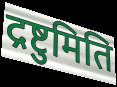
द्रष्टुमिति